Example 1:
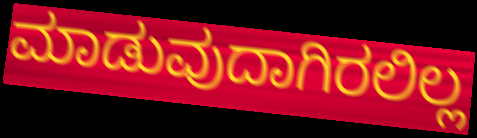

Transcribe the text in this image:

ಮಾಡುವುದಾಗಿರಲಿಲ್ಲ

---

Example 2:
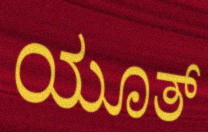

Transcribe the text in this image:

ಯೂತ್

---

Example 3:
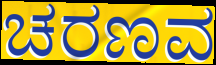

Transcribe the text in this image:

ಚರಣವ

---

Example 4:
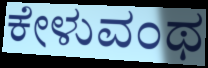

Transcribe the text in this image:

ಕೇಳುವಂಥ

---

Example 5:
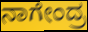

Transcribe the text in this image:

ನಾಗೇಂದ್ರ